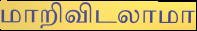
மாறிவிடலாமா